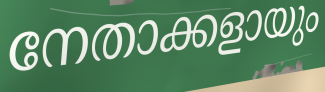
നേതാക്കളായും